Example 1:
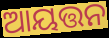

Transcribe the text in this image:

ଆୟତ୍ତନ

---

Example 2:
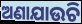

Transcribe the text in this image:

ଅଣାଯାଉଚି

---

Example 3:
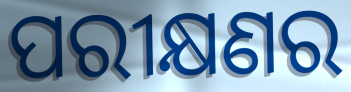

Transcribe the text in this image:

ପରୀକ୍ଷଣର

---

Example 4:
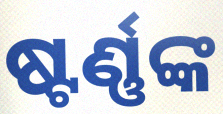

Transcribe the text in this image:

ଷ୍ଟର୍ଣ୍ଣଙ୍କ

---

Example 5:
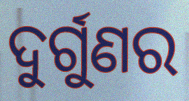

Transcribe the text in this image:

ଦୁର୍ଗୁଣର